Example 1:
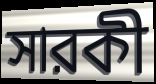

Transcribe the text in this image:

সারকী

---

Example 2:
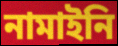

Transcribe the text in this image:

নামাইনি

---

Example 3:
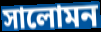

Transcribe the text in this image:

সালোমন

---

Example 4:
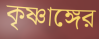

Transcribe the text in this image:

কৃষ্ণাঙ্গের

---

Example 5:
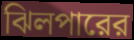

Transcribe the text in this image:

ঝিলপারের